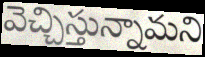
వెచ్చిస్తున్నామని